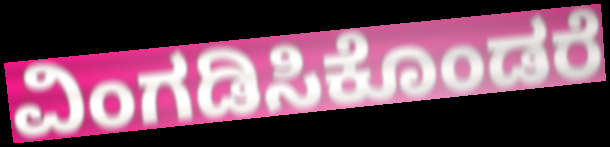
ವಿಂಗಡಿಸಿಕೊಂಡರೆ